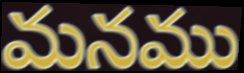
మనము